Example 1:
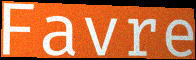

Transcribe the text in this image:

Favre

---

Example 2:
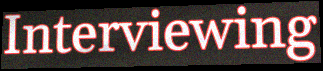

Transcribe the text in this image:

Interviewing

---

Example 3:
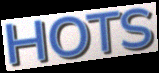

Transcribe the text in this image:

HOTS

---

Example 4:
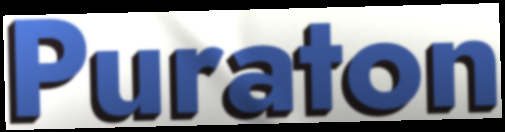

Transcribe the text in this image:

Puraton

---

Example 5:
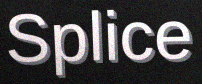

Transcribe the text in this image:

Splice